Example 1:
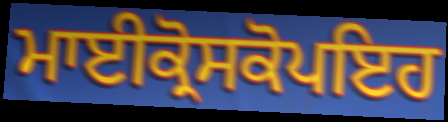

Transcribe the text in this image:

ਮਾਈਕ੍ਰੋਸਕੋਪਇਹ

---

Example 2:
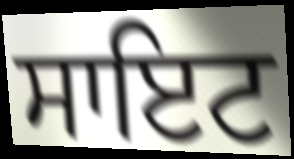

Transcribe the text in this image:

ਸਾਇਟ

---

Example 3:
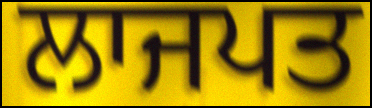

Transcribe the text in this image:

ਲਾਜਪਤ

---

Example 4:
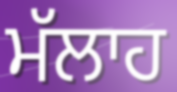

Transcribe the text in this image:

ਮੱਲਾਹ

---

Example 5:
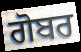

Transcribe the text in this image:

ਗੋਬਰ